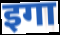
इगा